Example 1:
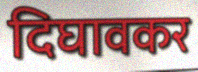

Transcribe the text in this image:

दिघावकर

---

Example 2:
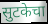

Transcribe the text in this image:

सुटकेचा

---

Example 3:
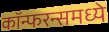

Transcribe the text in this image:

कॉन्फरन्समध्ये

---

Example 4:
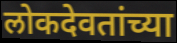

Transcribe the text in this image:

लोकदेवतांच्या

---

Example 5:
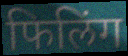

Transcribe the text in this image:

फिलिंग